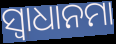
ସ୍ଵାଧାନମା